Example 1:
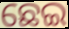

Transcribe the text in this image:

ଛେଇ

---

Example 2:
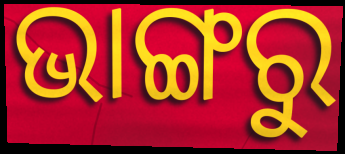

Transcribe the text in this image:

ଭାଙ୍ଗରୁ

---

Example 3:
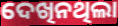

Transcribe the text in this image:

ଦେଖିନଥିଲା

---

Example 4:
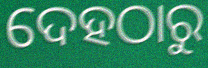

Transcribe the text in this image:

ଦେହଠାରୁ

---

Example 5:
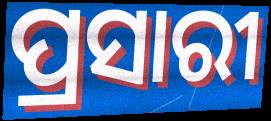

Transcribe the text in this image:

ପ୍ରସାରୀ